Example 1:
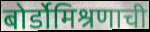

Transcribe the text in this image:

बोर्डोमिश्रणाची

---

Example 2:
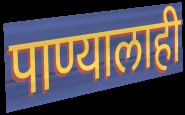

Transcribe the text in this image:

पाण्यालाही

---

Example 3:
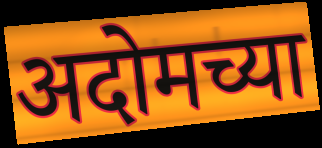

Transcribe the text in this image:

अदोमच्या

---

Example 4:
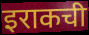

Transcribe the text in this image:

इराकची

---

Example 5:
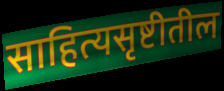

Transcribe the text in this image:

साहित्यसृष्टीतील